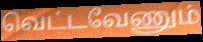
வெட்டவேணும்